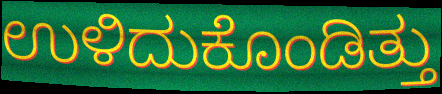
ಉಳಿದುಕೊಂಡಿತ್ತು